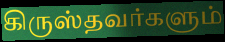
கிருஸ்தவர்களும்